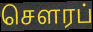
செளரப்